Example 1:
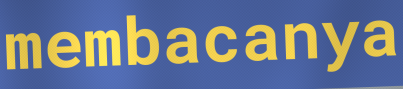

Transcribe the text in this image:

membacanya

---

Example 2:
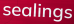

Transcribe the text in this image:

sealings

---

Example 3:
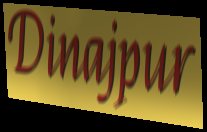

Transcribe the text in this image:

Dinajpur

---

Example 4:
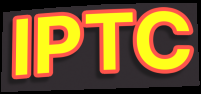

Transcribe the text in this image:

IPTC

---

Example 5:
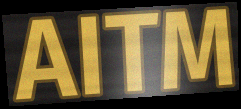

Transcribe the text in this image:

AITM